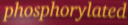
phosphorylated